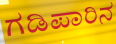
ಗಡಿಪಾರಿನ